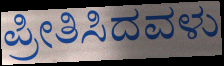
ಪ್ರೀತಿಸಿದವಳು